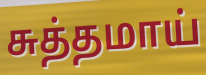
சுத்தமாய்